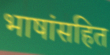
भाषांसहित